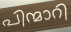
പിന്മാറി